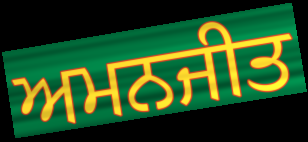
ਅਮਨਜੀਤ